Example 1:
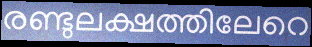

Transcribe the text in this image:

രണ്ടുലക്ഷത്തിലേറെ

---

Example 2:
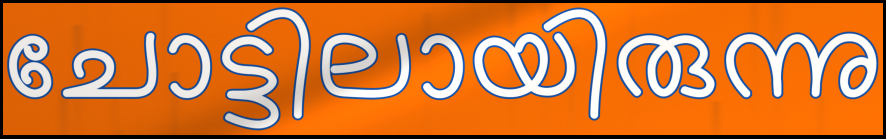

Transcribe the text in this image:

ചോട്ടിലായിരുന്നു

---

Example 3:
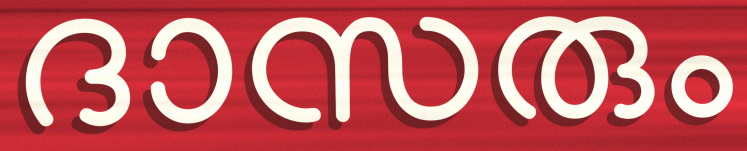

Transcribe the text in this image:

ദാസരും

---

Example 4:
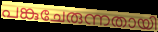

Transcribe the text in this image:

പങ്കുചേരുന്നതായി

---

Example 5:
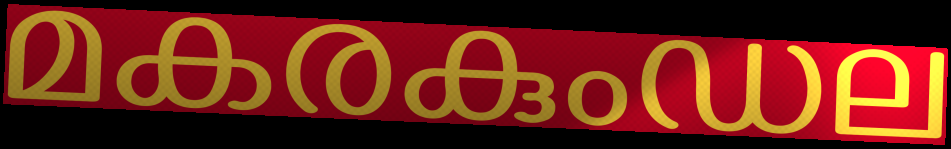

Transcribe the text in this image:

മകരകുംഡല